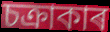
চক্ৰাকাৰ